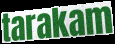
tarakam